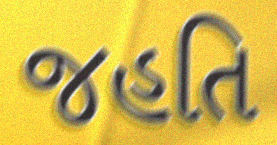
જહતિ